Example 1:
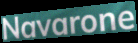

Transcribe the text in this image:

Navarone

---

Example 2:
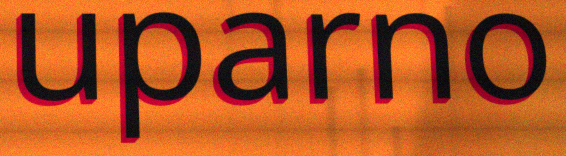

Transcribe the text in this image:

uparno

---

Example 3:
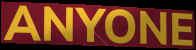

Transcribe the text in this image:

ANYONE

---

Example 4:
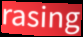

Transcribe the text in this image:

rasing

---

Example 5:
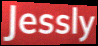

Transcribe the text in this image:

Jessly